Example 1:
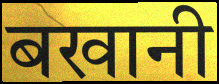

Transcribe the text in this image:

बखानी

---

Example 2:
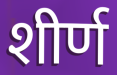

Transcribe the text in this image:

शीर्ण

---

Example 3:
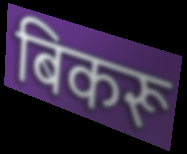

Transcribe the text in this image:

बिकरू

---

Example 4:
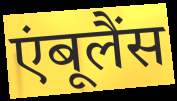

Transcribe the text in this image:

एंबूलैंस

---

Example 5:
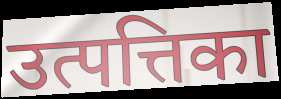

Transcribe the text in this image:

उत्पत्तिका